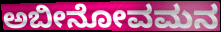
ಅಬೀನೋವಮನ